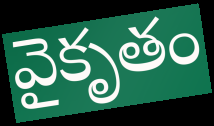
వైకృతం